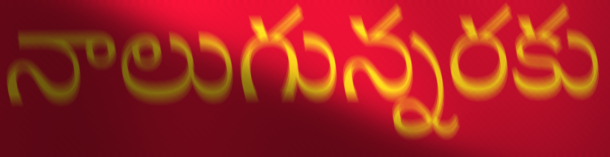
నాలుగున్నరకు